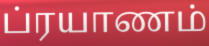
ப்ரயாணம்